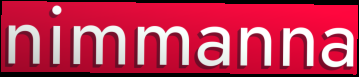
nimmanna